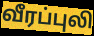
வீரப்புலி